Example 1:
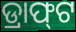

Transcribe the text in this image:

ଡ୍ରାଫ୍‌ଟ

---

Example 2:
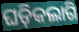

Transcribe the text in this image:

ଘଡ଼ିକଲାଗି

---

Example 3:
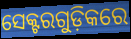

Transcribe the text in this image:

ସେକ୍ଟରଗୁଡ଼ିକରେ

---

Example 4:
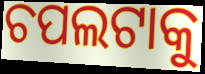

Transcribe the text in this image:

ଚପଲଟାକୁ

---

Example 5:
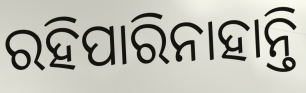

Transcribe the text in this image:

ରହିପାରିନାହାନ୍ତି